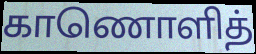
காணொளித்